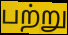
பற்று